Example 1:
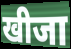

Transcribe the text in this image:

खीजा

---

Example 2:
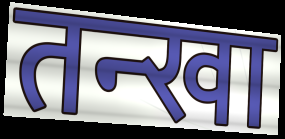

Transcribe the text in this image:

तन्खा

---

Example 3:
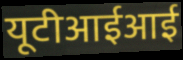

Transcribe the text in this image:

यूटीआईआई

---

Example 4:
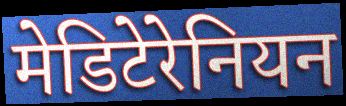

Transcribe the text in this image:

मेडिटेरेनियन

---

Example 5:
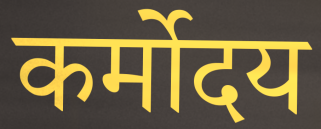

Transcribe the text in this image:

कर्मोदय